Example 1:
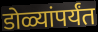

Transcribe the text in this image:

डोळ्यांपर्यंत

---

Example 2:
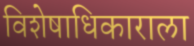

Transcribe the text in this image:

विशेषाधिकाराला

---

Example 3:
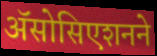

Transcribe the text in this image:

ॲसोसिएशनने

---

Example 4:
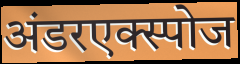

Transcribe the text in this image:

अंडरएक्स्पोज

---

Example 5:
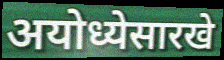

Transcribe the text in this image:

अयोध्येसारखे